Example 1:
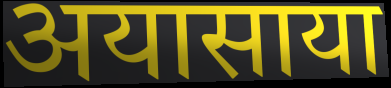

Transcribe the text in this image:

अयासाया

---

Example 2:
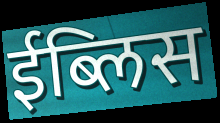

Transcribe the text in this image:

ईब्लिस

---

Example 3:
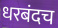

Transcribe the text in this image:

धरबंदच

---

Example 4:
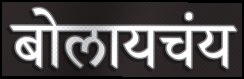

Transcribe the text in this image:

बोलायचंय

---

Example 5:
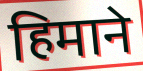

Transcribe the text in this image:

हिमाने